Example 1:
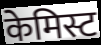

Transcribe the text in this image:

केमिस्ट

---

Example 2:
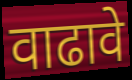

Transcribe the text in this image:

वाढावे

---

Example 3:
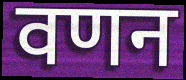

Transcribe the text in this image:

वणन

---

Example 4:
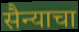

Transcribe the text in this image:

सैन्याचा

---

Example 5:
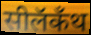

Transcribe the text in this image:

सीलॅकँथ